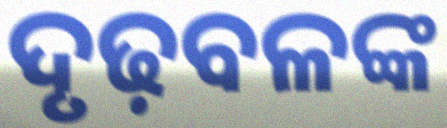
ଦୃଢ଼ବଳଙ୍କ